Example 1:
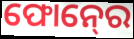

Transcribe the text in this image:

ଫୋନ୍‍ରେ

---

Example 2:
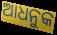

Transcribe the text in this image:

ଆଧନୁକ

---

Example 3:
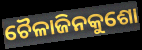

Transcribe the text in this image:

ଚୈଳାଜିନକୁଶୋ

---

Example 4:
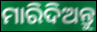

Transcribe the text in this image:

ମାରିଦିଅନ୍ତୁ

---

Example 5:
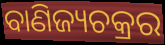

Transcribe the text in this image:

ବାଣିଜ୍ୟଚକ୍ରର